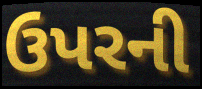
ઉપરની